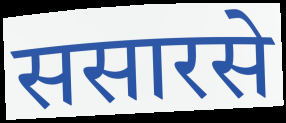
ससारसे